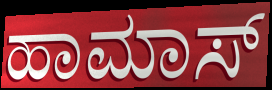
ಹಾಮಾಸ್